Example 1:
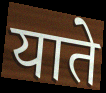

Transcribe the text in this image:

याते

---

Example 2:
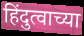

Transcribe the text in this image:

हिंदुत्वाच्या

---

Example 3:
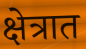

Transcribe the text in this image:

क्षेत्रात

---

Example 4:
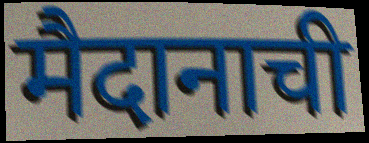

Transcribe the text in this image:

मैदानाची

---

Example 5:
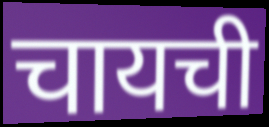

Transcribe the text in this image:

चायची